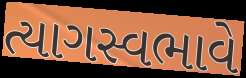
ત્યાગસ્વભાવે